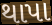
થાપા